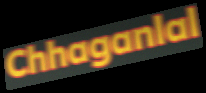
Chhaganlal